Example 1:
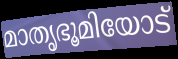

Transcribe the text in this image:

മാതൃഭൂമിയോട്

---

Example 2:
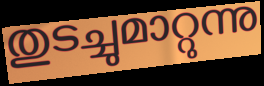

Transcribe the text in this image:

തുടച്ചുമാറ്റുന്നു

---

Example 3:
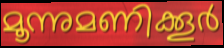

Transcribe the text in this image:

മൂന്നുമണിക്കൂർ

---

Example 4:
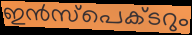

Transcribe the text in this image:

ഇൻസ്പെക്ടറും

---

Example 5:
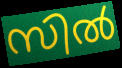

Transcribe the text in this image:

സിൽ